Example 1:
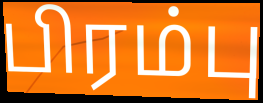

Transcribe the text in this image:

பிரம்பு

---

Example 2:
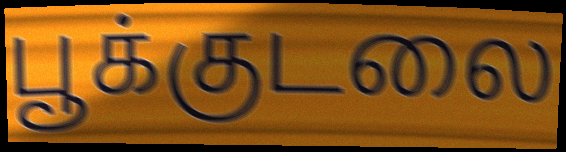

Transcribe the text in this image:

பூக்குடலை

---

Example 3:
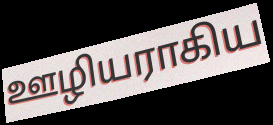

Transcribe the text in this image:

ஊழியராகிய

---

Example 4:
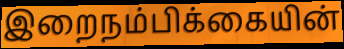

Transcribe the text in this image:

இறைநம்பிக்கையின்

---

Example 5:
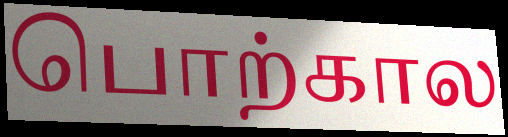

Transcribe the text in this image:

பொற்கால